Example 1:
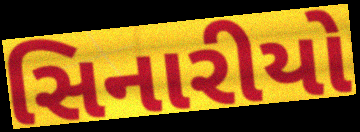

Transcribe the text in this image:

સિનારીયો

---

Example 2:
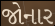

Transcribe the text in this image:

જોનાર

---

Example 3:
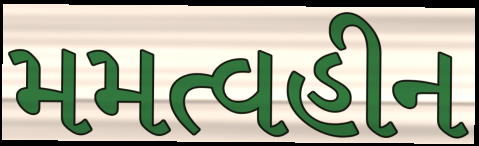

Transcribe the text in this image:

મમત્વહીન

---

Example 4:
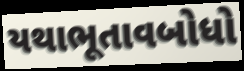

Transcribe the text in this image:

યથાભૂતાવબોધો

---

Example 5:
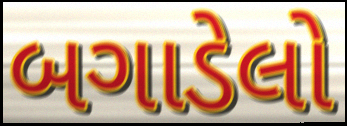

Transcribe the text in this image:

બગાડેલો